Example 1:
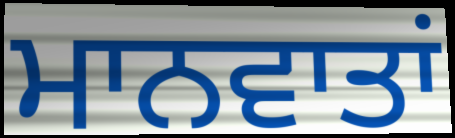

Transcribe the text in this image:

ਮਾਨਵਾਤਾਂ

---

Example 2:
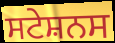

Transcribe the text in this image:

ਸਟੇਸ਼ਨਸ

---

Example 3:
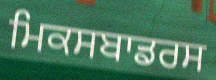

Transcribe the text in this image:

ਮਿਕਸਬਾਡਰਸ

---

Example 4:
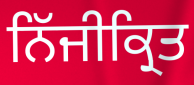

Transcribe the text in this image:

ਨਿੱਜੀਕ੍ਰਿਤ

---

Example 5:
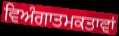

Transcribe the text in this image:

ਵਿਅੰਗਾਤਮਕਤਾਵਾਂ